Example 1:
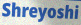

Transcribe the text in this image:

Shreyoshi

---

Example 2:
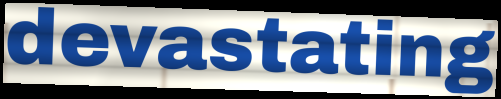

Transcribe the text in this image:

devastating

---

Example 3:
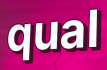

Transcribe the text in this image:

qual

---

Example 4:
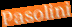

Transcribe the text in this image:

Pasolini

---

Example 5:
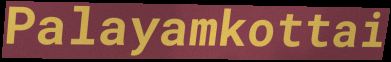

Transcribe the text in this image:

Palayamkottai